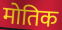
मोतिक